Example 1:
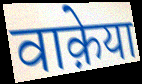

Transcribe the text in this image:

वाक़ेया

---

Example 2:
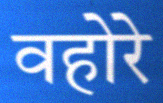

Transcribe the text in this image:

वहोरे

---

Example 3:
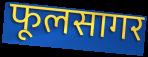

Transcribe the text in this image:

फूलसागर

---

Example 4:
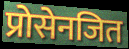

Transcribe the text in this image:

प्रोसेनजित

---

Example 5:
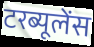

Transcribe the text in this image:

टरब्यूलेंस